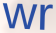
wr